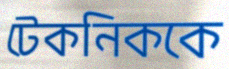
টেকনিককে